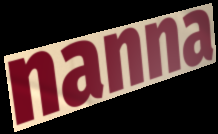
nanna